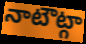
నాటౌట్గా